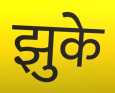
झुके